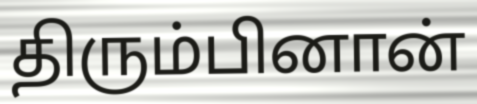
திரும்பினான்